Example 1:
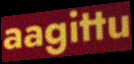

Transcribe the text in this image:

aagittu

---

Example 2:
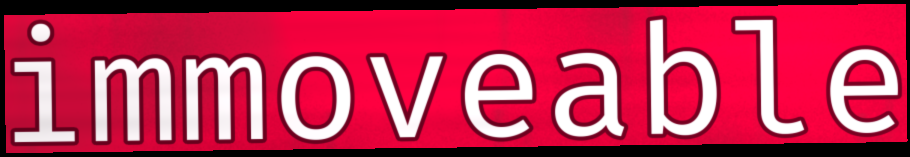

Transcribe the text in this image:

immoveable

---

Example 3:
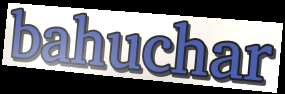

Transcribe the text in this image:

bahuchar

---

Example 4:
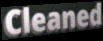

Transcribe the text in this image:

Cleaned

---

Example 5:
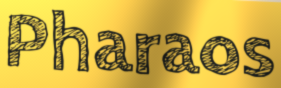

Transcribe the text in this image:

Pharaos